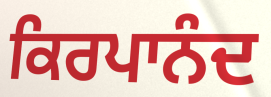
ਕਿਰਪਾਨੰਦ